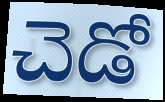
చెడో